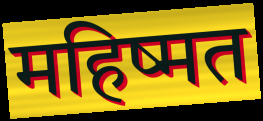
महिष्मत